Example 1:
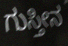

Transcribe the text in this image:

ಗುಸ್ತೀನ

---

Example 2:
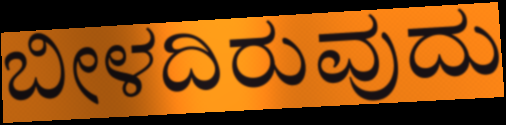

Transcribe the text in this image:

ಬೀಳದಿರುವುದು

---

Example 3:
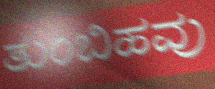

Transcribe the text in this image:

ತುಂಬಿಹವು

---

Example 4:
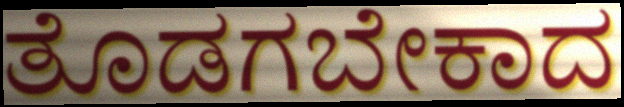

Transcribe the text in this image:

ತೊಡಗಬೇಕಾದ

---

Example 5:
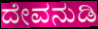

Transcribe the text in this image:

ದೇವನುಡಿ